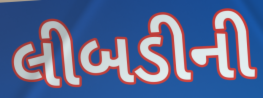
લીબડીની